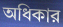
অধিকার